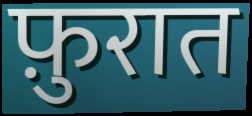
फ़ुरात